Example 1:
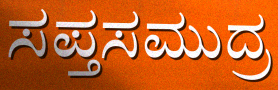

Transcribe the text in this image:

ಸಪ್ತಸಮುದ್ರ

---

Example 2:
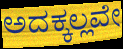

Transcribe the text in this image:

ಅದಕ್ಕಲ್ಲವೇ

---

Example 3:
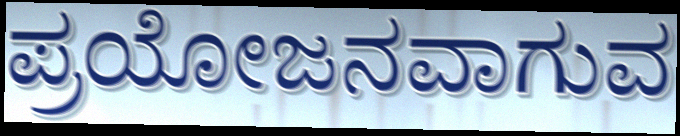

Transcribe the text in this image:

ಪ್ರಯೋಜನವಾಗುವ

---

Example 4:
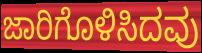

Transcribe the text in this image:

ಜಾರಿಗೊಳಿಸಿದವು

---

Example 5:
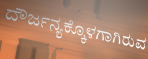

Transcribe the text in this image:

ದೌರ್ಜನ್ಯಕ್ಕೊಳಗಾಗಿರುವ